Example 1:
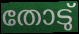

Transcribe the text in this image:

തോടു്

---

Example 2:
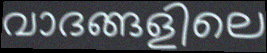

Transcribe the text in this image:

വാദങ്ങളിലെ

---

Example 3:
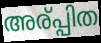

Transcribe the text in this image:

അര്പ്പിത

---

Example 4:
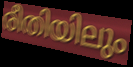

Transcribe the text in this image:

രീതിയിലും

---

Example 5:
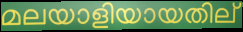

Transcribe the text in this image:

മലയാളിയായതില്